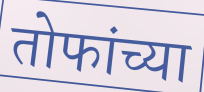
तोफांच्या